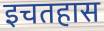
इचतहास